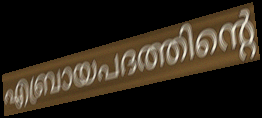
എബ്രായപദത്തിന്റെ